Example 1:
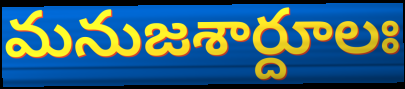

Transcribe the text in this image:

మనుజశార్దూలః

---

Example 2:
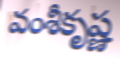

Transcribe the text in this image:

వంశీకృష్ణ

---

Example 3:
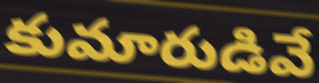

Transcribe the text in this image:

కుమారుడివే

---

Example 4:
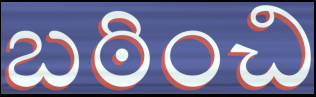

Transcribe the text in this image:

బఠించి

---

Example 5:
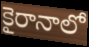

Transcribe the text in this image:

కైరానాలో